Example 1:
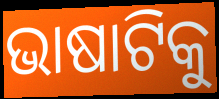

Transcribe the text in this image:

ଭାଷାଟିକୁ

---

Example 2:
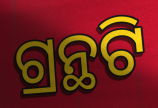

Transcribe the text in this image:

ଗ୍ରନ୍ଥଟି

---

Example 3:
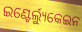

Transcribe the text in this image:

ଇଣ୍ଟେର୍ଲ୍ୟୁକେଇନ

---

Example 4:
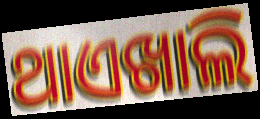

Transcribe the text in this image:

ଥାଏଖାଲି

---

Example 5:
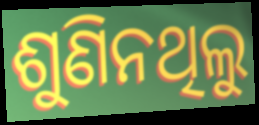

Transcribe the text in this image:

ଶୁଣିନଥିଲୁ